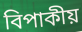
বিপাকীয়